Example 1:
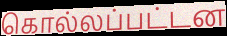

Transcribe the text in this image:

கொல்லப்பட்டன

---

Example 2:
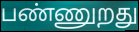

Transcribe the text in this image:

பண்ணுறது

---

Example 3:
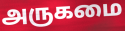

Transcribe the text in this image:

அருகமை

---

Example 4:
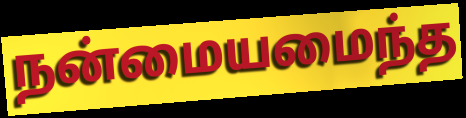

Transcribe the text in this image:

நன்மையமைந்த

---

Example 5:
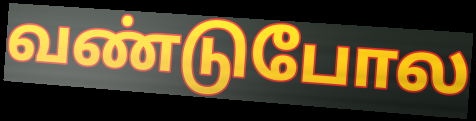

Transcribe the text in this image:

வண்டுபோல